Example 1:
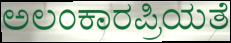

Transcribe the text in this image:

ಅಲಂಕಾರಪ್ರಿಯತೆ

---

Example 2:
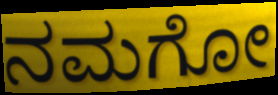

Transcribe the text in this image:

ನಮಗೋ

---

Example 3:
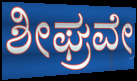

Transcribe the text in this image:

ಶೀಘ್ರವೇ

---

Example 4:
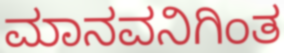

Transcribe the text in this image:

ಮಾನವನಿಗಿಂತ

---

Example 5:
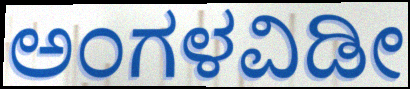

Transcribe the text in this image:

ಅಂಗಳವಿಡೀ